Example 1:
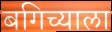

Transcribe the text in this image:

बगिच्याला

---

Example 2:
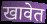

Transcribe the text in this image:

खावेत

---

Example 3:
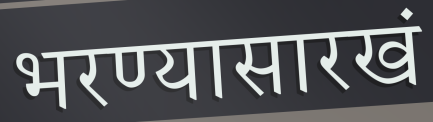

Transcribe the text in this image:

भरण्यासारखं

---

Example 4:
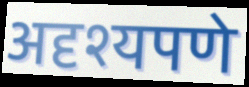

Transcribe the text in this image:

अदृश्यपणे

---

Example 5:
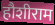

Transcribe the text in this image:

हौशीराम